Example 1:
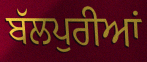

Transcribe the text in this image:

ਬੱਲਪੁਰੀਆਂ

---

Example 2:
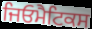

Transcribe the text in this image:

ਜਿਓਮੈਟਿਕਸ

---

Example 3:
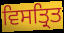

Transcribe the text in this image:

ਵਿਸਤ੍ਰਿਤ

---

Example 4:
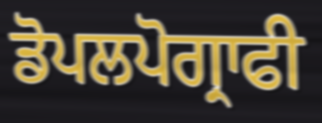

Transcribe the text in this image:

ਡੋਪਲਪੋਗ੍ਰਾਫੀ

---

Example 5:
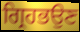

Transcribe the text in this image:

ਗ੍ਰਿਹਭਉਣ